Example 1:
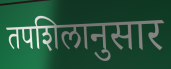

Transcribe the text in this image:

तपशिलानुसार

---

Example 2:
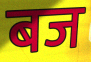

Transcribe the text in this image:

बज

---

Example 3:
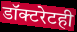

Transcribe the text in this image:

डॉक्‍टरेटही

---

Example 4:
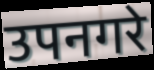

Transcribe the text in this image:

उपनगरे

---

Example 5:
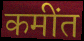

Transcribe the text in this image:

कमींत